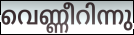
വെണ്ണീറിന്നു